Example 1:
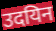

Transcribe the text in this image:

उदयिन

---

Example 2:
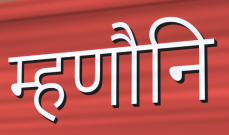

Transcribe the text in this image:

म्हणौनि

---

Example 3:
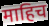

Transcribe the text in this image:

माहिच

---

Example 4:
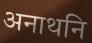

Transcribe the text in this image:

अनाथनि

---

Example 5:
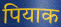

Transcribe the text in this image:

पियाक